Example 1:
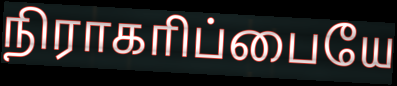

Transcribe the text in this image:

நிராகரிப்பையே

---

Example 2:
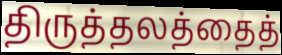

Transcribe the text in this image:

திருத்தலத்தைத்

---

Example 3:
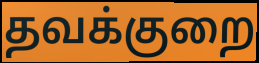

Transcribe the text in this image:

தவக்குறை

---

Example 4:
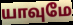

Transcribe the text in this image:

யாவுமே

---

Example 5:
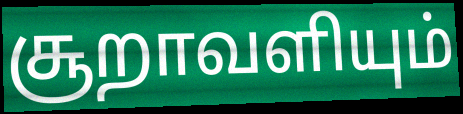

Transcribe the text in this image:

சூறாவளியும்